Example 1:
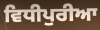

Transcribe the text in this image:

ਵਿਧੀਪੁਰੀਆ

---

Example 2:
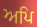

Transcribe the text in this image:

ਅਪਿ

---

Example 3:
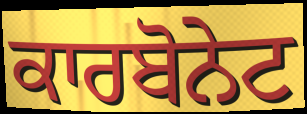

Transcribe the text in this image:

ਕਾਰਬੋਨੇਟ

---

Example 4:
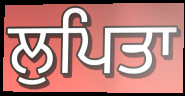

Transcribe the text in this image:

ਲੁਪਿਤਾ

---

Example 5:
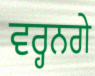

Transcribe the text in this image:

ਵਰ੍ਹਨਗੇ